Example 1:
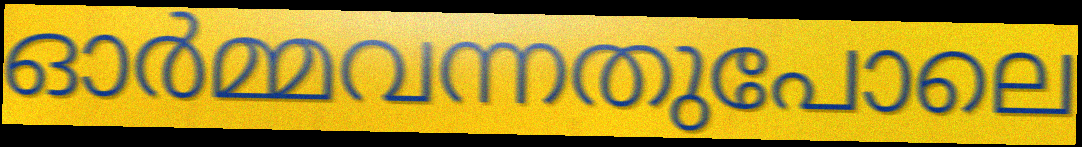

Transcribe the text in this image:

ഓർമ്മവന്നതുപോലെ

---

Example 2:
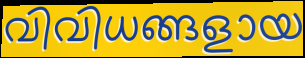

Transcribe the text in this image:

വിവിധങ്ങളായ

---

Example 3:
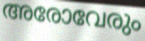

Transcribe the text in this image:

അരോവേരും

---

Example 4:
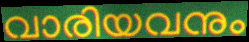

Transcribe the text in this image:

വാരിയവനും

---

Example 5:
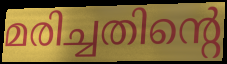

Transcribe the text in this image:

മരിച്ചതിന്റെ